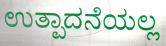
ಉತ್ಪಾದನೆಯಲ್ಲ